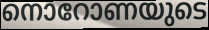
നൊറോണയുടെ